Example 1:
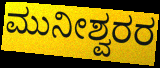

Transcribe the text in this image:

ಮುನೀಶ್ವರರ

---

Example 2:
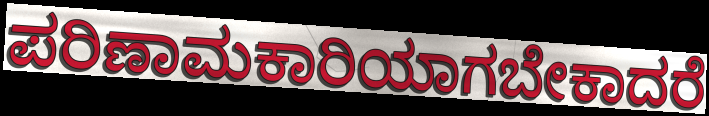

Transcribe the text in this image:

ಪರಿಣಾಮಕಾರಿಯಾಗಬೇಕಾದರೆ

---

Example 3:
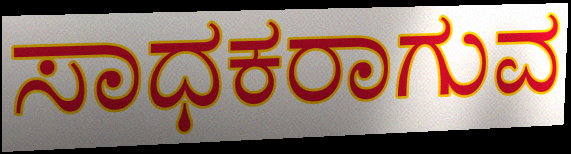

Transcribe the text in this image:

ಸಾಧಕರಾಗುವ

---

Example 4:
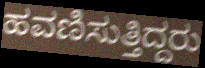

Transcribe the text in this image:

ಹವಣಿಸುತ್ತಿದ್ದರು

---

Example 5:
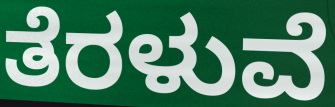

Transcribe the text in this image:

ತೆರಳುವೆ